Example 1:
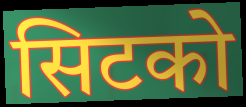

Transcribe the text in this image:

सिटको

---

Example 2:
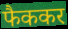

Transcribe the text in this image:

फैककर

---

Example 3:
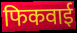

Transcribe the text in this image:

फिकवाई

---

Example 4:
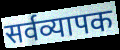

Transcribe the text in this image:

सर्वव्यापक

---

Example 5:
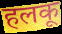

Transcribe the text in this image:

हलकू